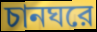
চানঘরে